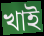
খাই